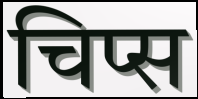
चिप्‍स